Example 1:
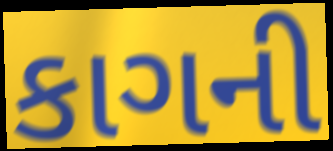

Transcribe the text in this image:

કાગની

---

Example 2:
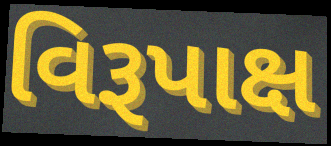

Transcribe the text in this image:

વિરૂપાક્ષ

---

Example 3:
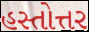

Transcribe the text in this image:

હસ્તોત્તર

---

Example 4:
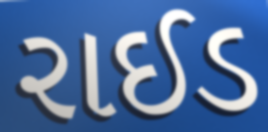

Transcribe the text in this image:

રાઈડ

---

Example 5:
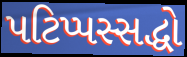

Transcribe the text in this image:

પટિપ્પસ્સદ્ધો